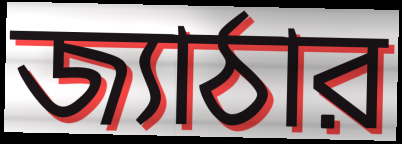
জ্যাঠার